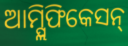
ଆମ୍ପ୍ଲିଫିକେସନ୍